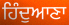
ਹਿੰਦੁਆਣਾ